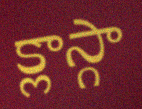
క్లాస్గా